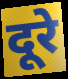
दूरे